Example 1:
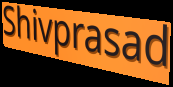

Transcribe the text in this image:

Shivprasad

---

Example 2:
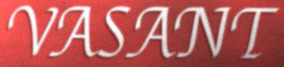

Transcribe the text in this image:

VASANT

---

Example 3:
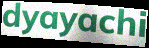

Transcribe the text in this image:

dyayachi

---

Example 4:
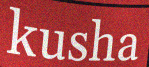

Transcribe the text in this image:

kusha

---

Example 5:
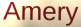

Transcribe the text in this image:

Amery